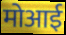
मोआई